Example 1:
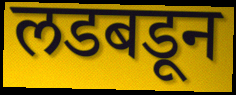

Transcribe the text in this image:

लडबडून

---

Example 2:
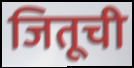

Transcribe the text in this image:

जितूची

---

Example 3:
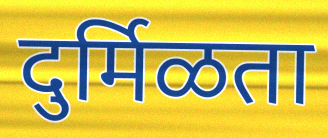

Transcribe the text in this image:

दुर्मिळता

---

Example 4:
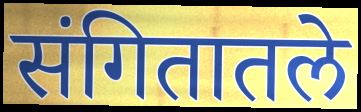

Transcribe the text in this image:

संगितातले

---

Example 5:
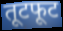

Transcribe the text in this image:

तूटफूट